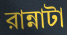
রান্নাটা